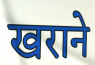
खराने